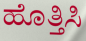
ಹೊತ್ತಿಸಿ